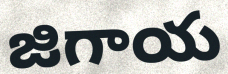
జిగాయ